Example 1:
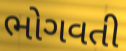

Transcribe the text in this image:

ભોગવતી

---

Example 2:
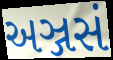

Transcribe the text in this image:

અઞ્જસં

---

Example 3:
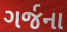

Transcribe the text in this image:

ગર્જના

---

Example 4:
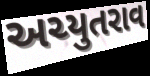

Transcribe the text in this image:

અચ્યુતરાવ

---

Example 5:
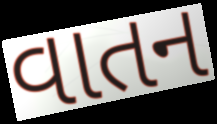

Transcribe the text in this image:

વાતન